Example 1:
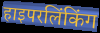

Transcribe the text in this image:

हाइपरलिंकिंग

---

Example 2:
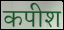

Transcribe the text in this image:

कपीश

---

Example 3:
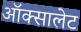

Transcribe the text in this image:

ऑक्सालेट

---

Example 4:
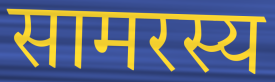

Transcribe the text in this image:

सामरस्य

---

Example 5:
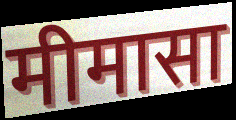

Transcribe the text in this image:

मीमासा